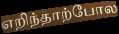
எறிந்தாற்போல